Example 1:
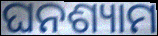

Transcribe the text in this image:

ଘନଶ୍ୟାମ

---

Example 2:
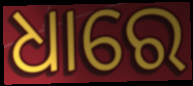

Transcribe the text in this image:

ଧାରେ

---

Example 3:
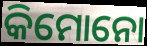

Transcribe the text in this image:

କିମୋନୋ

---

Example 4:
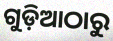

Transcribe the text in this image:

ଗୁଡ଼ିଆଠାରୁ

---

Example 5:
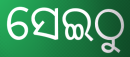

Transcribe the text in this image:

ସେଇଠୁ